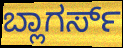
ಬ್ಲಾಗರ್ಸ್